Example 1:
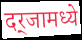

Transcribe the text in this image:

दर्जामध्ये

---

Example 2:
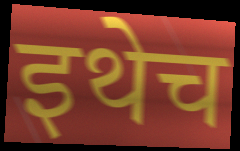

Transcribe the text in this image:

इथेच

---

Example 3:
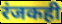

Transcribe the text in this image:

रंजकही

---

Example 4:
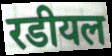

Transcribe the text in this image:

रडीयल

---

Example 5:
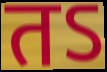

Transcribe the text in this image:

तऽ